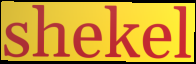
shekel